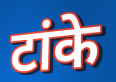
टांके